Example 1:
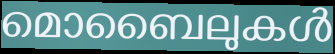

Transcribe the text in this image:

മൊബൈലുകൾ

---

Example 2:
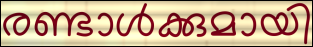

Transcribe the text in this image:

രണ്ടാൾക്കുമായി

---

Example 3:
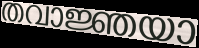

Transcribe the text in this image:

തവാജ്ഞയാ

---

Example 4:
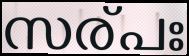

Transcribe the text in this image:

സര്പഃ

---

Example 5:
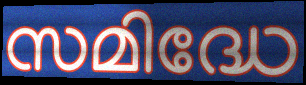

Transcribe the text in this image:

സമിദ്ധേ